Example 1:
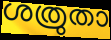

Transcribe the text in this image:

ശത്രുതാ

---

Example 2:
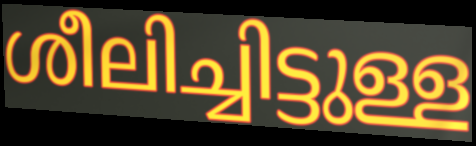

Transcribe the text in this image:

ശീലിച്ചിട്ടുള്ള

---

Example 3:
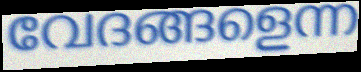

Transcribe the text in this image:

വേദങ്ങളെന്ന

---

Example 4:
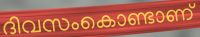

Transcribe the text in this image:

ദിവസംകൊണ്ടാണ്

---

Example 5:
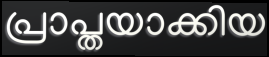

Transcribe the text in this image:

പ്രാപ്തയാക്കിയ